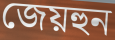
জেয়হুন